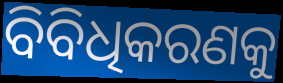
ବିବିଧିକରଣକୁ